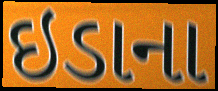
ઇડાના